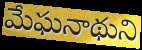
మేఘనాథుని